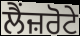
ਲੈਂਜ਼ਰੋਟੇ